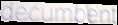
decumbent